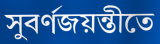
সুবর্ণজয়ন্তীতে